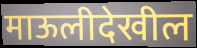
माऊलीदेखील